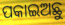
ପକାଇଅଛୁ